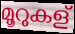
മൂറുകള്